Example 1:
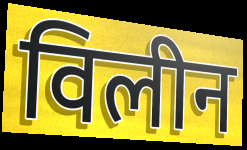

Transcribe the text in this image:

विलीन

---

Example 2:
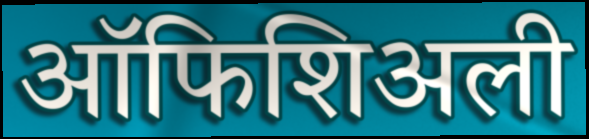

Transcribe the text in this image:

ऑफिशिअली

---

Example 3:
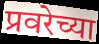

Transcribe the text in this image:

प्रवरेच्या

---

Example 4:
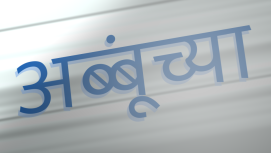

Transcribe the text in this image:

अब्बूंच्या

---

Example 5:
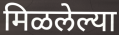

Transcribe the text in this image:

मिळलेल्या